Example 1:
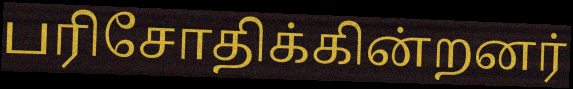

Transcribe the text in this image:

பரிசோதிக்கின்றனர்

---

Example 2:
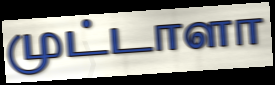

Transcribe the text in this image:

முட்டாளா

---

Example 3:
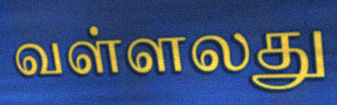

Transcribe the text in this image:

வள்ளலது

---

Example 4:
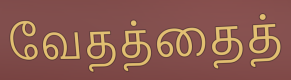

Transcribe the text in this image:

வேதத்தைத்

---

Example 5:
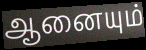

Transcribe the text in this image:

ஆனையும்